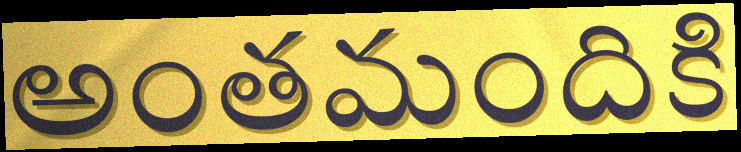
అంతమందికి